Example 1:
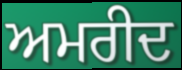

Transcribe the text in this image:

ਅਮਰੀਦ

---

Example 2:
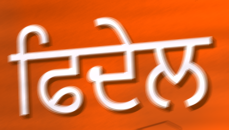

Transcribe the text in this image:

ਫਿਦੇਲ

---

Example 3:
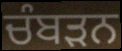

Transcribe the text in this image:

ਚੰਬੜਨ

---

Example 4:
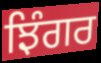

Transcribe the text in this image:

ਝਿੰਗਰ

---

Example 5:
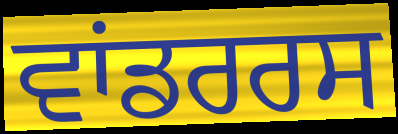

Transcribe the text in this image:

ਵਾਂਡਰਰਸ